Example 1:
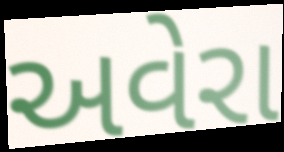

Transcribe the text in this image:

અવેરા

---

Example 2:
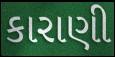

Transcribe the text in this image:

કારાણી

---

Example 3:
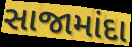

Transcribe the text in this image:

સાજામાંદા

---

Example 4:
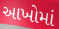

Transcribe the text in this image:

આખોમાં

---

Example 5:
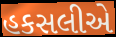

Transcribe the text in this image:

હકસલીએ